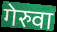
गेरुवा